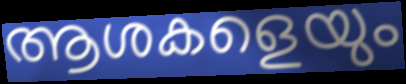
ആശകളെയും